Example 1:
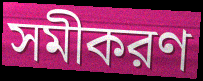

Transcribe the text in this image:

সমীকরণ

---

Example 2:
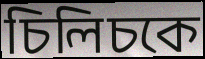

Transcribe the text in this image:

চিলিচকে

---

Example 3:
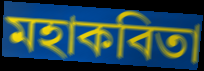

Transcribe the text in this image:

মহাকবিতা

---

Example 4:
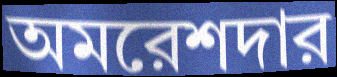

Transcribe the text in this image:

অমরেশদার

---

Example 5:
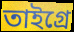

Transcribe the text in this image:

তাইগ্রে